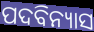
ପଦବିନ୍ୟାସ